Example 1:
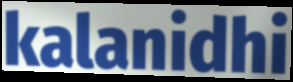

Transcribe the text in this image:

kalanidhi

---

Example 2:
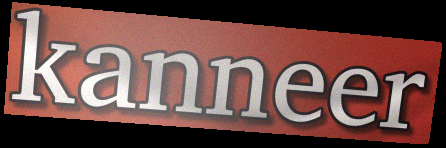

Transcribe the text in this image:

kanneer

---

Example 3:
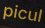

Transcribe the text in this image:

picul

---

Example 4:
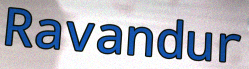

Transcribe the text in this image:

Ravandur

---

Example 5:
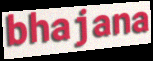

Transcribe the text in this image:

bhajana